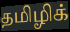
தமிழிக்